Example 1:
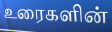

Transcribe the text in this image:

உரைகளின்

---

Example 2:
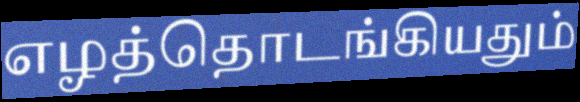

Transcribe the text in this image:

எழத்தொடங்கியதும்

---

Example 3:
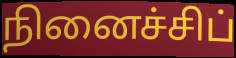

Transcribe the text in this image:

நினைச்சிப்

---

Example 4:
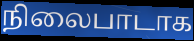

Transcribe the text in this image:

நிலைபாடாக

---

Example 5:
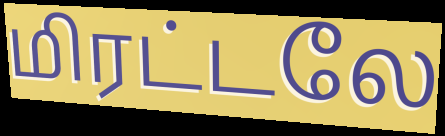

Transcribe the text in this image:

மிரட்டலே